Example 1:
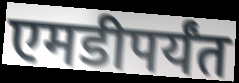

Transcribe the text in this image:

एमडीपर्यंत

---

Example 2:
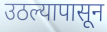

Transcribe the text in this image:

उठल्यापासून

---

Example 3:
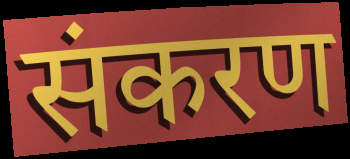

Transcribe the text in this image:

संकरण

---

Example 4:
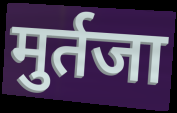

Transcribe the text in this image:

मुर्तजा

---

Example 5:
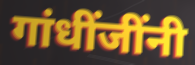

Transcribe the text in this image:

गांधींजींनी